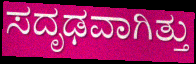
ಸದೃಢವಾಗಿತ್ತು